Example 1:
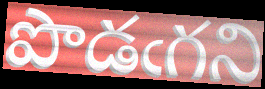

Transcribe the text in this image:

పొడఁగని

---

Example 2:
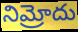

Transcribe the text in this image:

నిమ్రోదు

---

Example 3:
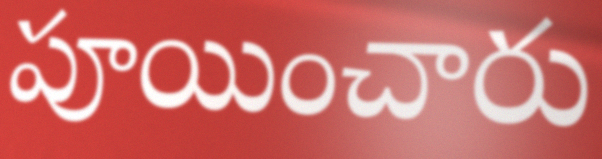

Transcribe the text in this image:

పూయించారు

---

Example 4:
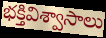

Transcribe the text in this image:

భక్తివిశ్వాసాలు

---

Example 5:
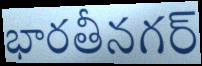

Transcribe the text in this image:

భారతీనగర్